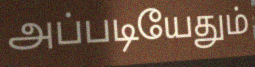
அப்படியேதும்